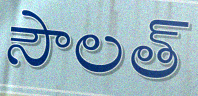
సౌలత్